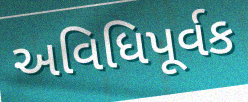
અવિધિપૂર્વક